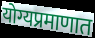
योग्यप्रमाणात